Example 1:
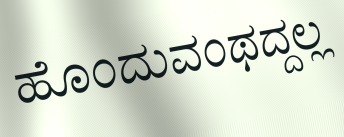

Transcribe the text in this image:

ಹೊಂದುವಂಥದ್ದಲ್ಲ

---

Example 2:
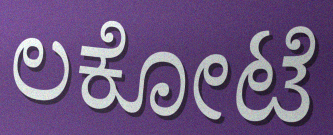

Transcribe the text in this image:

ಲಕೋಟೆ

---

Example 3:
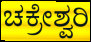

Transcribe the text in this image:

ಚಕ್ರೇಶ್ವರಿ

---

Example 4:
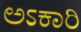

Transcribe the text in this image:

ಅಽಕಾರಿ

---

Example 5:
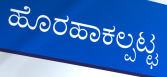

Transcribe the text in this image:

ಹೊರಹಾಕಲ್ಪಟ್ಟ